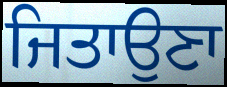
ਜਿਤਾਉਣਾ